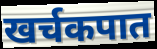
खर्चकपात